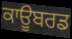
ਕਾਊਬਰਡ